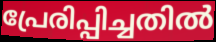
പ്രേരിപ്പിച്ചതിൽ